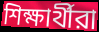
শিক্ষার্থীরা